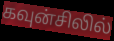
கவுன்சிலில்